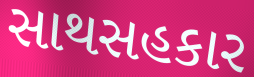
સાથસહકાર